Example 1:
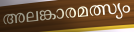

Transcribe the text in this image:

അലങ്കാരമത്സ്യം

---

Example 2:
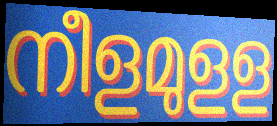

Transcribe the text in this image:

നീളമുളള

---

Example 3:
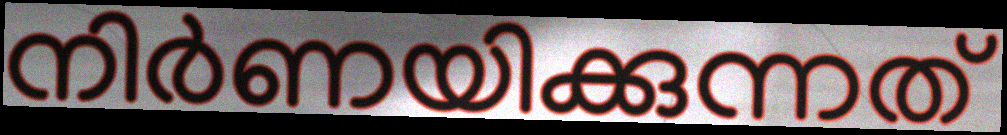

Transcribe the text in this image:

നിർണയിക്കുന്നത്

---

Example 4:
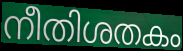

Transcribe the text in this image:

നീതിശതകം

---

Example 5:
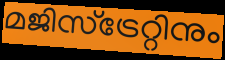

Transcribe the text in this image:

മജിസ്ട്രേറ്റിനും